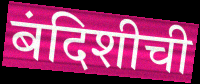
बंदिशीची